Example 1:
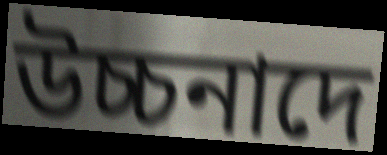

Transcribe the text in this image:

উচ্চনাদে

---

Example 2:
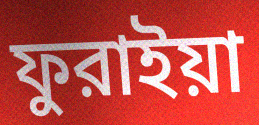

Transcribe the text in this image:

ফুরাইয়া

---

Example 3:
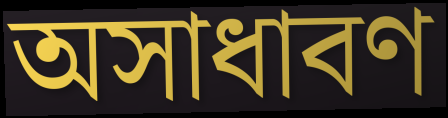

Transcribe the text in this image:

অসাধাবণ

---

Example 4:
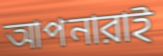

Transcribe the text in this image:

আপনারাই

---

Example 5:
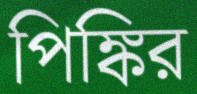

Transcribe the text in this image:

পিঙ্কির